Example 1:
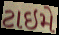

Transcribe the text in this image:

ટાઇમે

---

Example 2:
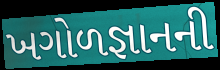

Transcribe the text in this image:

ખગોળજ્ઞાનની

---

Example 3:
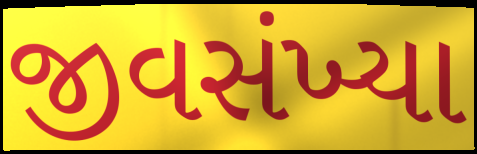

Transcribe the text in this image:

જીવસંખ્યા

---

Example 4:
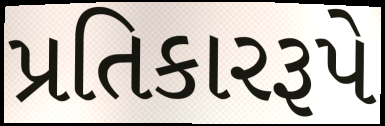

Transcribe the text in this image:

પ્રતિકારરૂપે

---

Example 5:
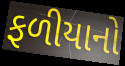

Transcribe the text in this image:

ફળીયાનો